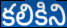
కలికిని